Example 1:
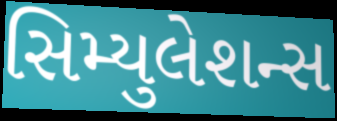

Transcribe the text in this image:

સિમ્યુલેશન્સ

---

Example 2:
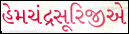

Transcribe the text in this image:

હેમચંદ્રસૂરિજીએ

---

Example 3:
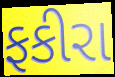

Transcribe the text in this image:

ફકીરા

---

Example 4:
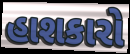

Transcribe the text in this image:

હાશકારો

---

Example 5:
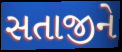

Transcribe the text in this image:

સતાજીને